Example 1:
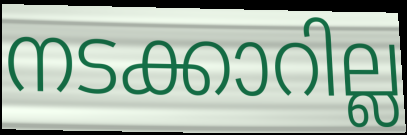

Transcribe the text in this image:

നടക്കാറില്ല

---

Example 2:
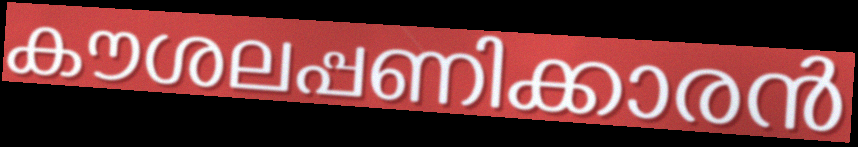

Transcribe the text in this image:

കൗശലപ്പണിക്കാരൻ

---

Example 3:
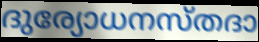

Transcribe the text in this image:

ദുര്യോധനസ്തദാ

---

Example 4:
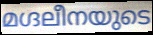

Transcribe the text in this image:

മഗ്ദലീനയുടെ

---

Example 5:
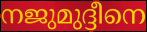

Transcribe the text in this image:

നജുമുദ്ദീനെ